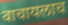
वाचायलाच